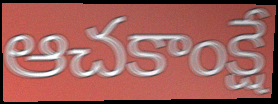
ఆచకాంక్షే